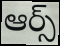
ఆర్స్